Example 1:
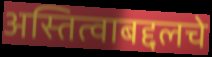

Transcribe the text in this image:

अस्तित्वाबद्दलचे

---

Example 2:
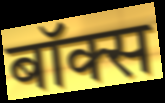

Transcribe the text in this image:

बॉक्‍स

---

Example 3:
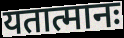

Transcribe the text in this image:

यतात्मानः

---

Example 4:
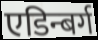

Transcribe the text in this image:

एडिन्बर्ग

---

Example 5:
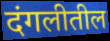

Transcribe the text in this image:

दंगलीतील